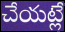
చేయట్లే